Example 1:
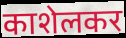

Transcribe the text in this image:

काशेलकर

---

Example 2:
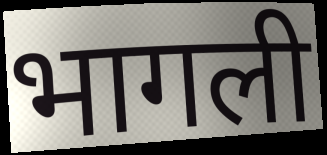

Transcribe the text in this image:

भागली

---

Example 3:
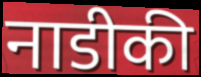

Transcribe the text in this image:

नाडीकी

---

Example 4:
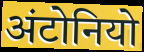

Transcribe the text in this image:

अंटोनियो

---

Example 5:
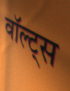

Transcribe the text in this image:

वॉल्ट्स